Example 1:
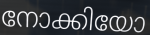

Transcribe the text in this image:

നോക്കിയോ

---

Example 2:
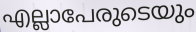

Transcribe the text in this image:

എല്ലാപേരുടെയും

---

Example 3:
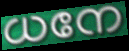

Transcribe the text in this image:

ധനേ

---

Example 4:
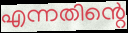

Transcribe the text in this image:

എന്നതിന്റെ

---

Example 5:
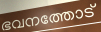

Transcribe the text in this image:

ഭവനത്തോട്